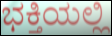
ಭಕ್ತಿಯಲ್ಲಿ